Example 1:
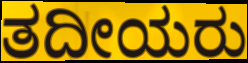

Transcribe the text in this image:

ತದೀಯರು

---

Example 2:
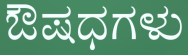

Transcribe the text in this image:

ಔಷಧಗಳು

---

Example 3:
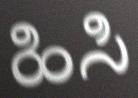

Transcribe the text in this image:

ಹಿಸಿ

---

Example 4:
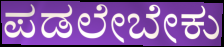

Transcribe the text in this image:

ಪಡಲೇಬೇಕು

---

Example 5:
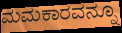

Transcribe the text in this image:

ಮಮಕಾರವನ್ನೂ